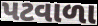
પટવાળા